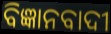
ବିଜ୍ଞାନବାଦୀ